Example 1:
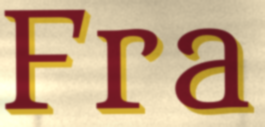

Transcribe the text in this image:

Fra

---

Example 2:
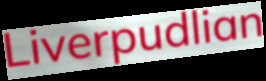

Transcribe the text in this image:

Liverpudlian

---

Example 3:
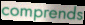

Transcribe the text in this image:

comprends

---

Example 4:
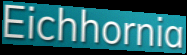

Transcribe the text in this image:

Eichhornia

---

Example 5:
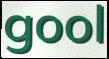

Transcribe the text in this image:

gool